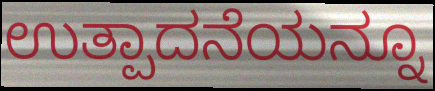
ಉತ್ಪಾದನೆಯನ್ನೂ